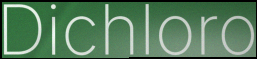
Dichloro